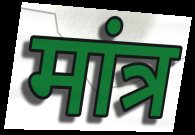
मांत्र